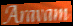
Aravam